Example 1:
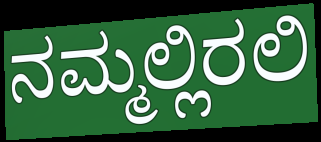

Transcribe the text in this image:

ನಮ್ಮಲ್ಲಿರಲಿ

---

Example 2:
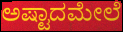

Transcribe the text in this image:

ಅಷ್ಟಾದಮೇಲೆ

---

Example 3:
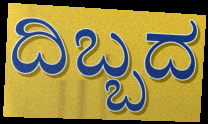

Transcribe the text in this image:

ದಿಬ್ಬದ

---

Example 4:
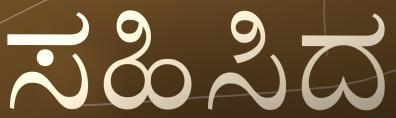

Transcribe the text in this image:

ಸಹಿಸಿದ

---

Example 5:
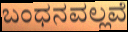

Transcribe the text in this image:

ಬಂಧನವಲ್ಲವೆ